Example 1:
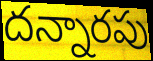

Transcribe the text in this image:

దన్నారపు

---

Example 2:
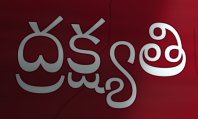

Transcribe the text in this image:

ద్రక్ష్యతి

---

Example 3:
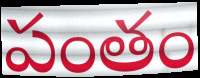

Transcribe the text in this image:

పంతం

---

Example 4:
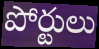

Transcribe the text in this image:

పోర్టులు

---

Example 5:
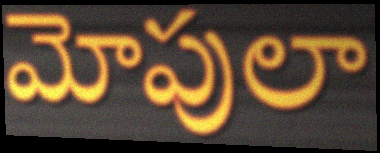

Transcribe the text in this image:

మోపులా